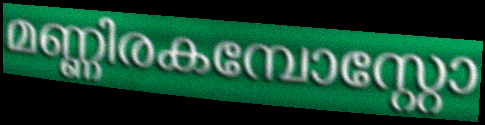
മണ്ണിരകമ്പോസ്റ്റോ